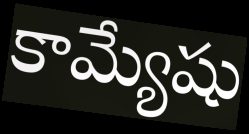
కామ్యేషు